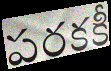
పరకకీ